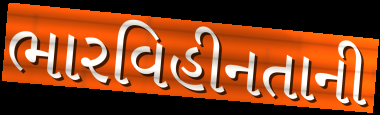
ભારવિહીનતાની